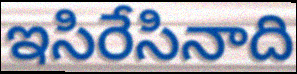
ఇసిరేసినాది